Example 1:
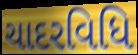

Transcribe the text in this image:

ચાદરવિધિ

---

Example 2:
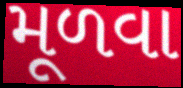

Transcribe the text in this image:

મૂળવા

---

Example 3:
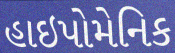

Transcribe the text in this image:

હાઇપોમેનિક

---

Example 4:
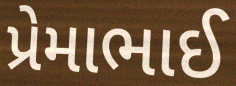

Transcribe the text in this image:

પ્રેમાભાઈ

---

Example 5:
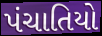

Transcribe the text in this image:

પંચાતિયો